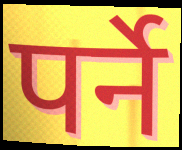
पर्ने